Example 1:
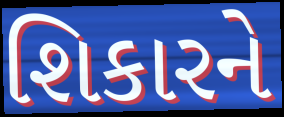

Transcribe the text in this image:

શિકારને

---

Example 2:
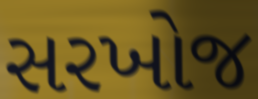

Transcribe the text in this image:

સરખોજ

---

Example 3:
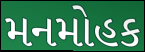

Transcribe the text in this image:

મનમોહક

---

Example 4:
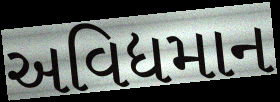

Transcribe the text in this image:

અવિદ્યમાન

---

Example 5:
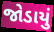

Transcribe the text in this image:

જોડાયું